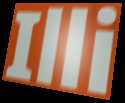
Illi